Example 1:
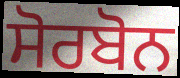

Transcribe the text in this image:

ਸੋਰਬੋਨ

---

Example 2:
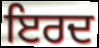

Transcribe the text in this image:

ਇਰਦ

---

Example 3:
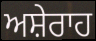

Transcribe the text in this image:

ਅਸ਼ੇਰਾਹ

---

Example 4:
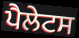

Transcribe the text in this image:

ਪੈਲੇਟਸ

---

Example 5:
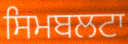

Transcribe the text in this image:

ਸਿਮਬਲਟਾ